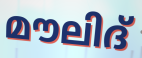
മൗലിദ്